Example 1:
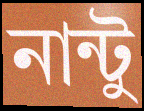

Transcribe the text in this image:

নান্টু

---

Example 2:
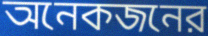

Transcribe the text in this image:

অনেকজনের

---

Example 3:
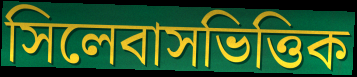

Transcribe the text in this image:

সিলেবাসভিত্তিক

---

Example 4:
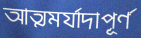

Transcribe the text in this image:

আত্মমর্যাদাপূর্ণ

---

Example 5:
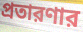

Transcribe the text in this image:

প্রতারণার